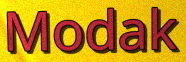
Modak